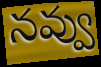
నవ్వు